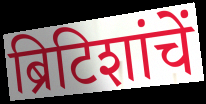
ब्रिटिशांचें